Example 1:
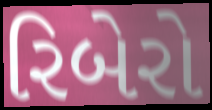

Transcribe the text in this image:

રિબેરો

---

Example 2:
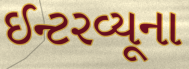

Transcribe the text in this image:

ઈન્ટરવ્યૂના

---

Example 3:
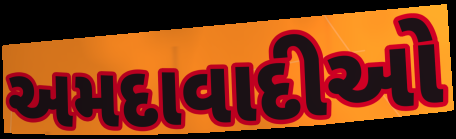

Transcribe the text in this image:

અમદાવાદીઓ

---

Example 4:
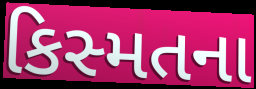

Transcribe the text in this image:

કિસ્મતના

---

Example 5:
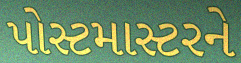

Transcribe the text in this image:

પોસ્ટમાસ્ટરને